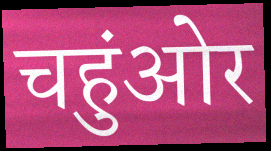
चहुंओर